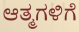
ಆತ್ಮಗಳಿಗೆ